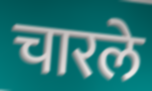
चारले